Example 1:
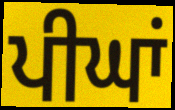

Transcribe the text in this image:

ਪੀਘਾਂ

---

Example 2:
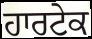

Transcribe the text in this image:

ਹਾਰਟੇਕ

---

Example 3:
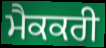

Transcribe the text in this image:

ਮੈਕਕਰੀ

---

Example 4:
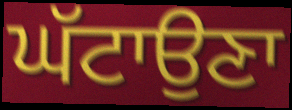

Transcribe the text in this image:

ਘੱਟਾਉਣਾ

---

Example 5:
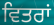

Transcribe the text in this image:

ਵਿਤਰਾਂ